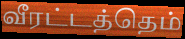
வீரட்டத்தெம்